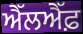
ਐੱਲਐੱਫ਼